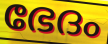
ഭേദം